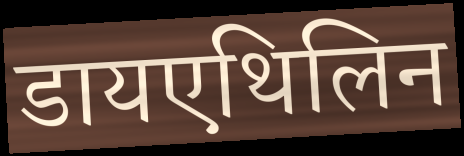
डायएथिलिन